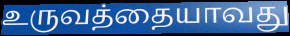
உருவத்தையாவது